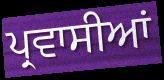
ਪ੍ਰਵਾਸੀਆਂ